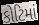
કોટિમાં